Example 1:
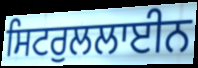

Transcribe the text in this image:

ਸਿਟਰੁਲਲਾਈਨ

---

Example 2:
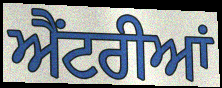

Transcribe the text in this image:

ਐਂਟਰੀਆਂ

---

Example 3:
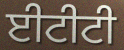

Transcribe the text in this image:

ਈਟੀਟੀ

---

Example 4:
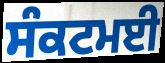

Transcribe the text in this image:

ਸੰਕਟਮਈ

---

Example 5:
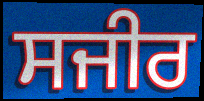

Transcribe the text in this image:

ਸਜੀਰ